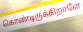
கொண்டிருக்கிறாளே